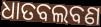
ଧାତବଲବଣ